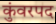
कुंवरपद